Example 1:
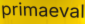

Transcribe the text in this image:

primaeval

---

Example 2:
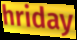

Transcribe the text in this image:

hriday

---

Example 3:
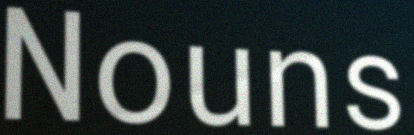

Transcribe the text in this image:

Nouns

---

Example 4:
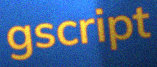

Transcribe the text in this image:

gscript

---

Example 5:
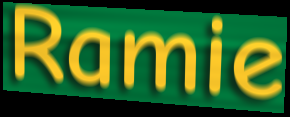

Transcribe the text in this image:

Ramie